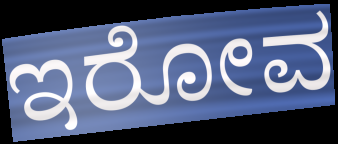
ಇರೋವ